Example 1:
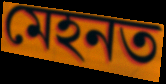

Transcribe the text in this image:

মেহনত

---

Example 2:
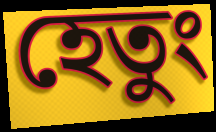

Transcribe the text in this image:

হেতুং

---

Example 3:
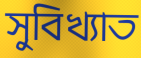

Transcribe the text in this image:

সুবিখ্যাত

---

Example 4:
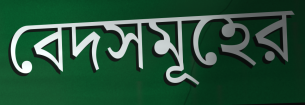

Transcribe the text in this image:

বেদসমূহের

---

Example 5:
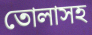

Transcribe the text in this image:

তোলাসহ